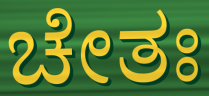
ಚೇತಃ